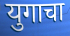
युगाचा